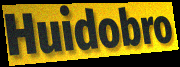
Huidobro